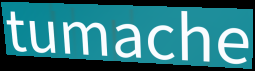
tumache